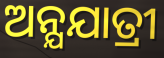
ଅନ୍ଯଯାତ୍ରୀ